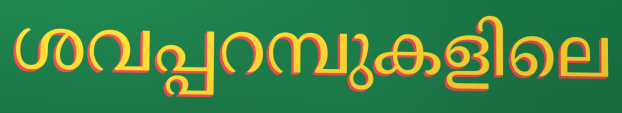
ശവപ്പറമ്പുകളിലെ